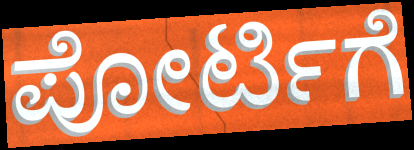
ಪೋರ್ಟಿಗೆ